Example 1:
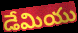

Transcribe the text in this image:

డేమియు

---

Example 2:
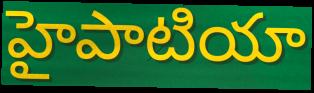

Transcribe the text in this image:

హైపాటియా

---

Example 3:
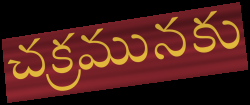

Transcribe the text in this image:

చక్రమునకు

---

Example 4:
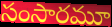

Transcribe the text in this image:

సంసారమూ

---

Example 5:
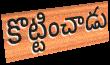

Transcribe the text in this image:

కొట్టించాడు